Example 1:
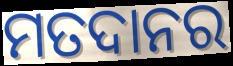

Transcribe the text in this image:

ମତଦାନର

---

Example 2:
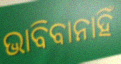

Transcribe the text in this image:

ଭାବିବାନାହିଁ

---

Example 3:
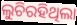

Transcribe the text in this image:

ଲୁଚିରହିଥିଲା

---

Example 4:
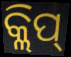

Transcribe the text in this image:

କ୍ଲିପ୍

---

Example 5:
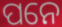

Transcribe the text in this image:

ପନେ